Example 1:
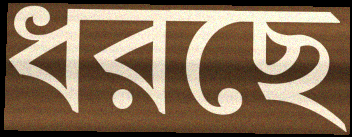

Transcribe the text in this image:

ধরছে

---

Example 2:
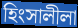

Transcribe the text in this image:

হিংসালীলা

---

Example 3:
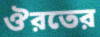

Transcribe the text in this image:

ঔরতের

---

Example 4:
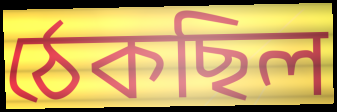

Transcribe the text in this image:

ঠেকছিল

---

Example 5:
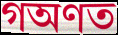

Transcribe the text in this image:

গঅণত